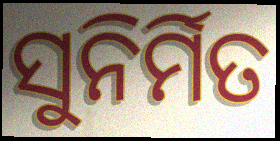
ସୁନିର୍ମିତ